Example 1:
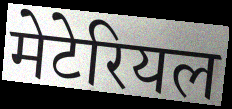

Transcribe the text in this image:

मेटेरियल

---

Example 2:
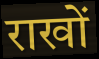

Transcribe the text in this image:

राखों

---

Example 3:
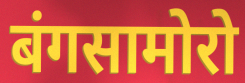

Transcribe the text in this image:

बंगसामोरो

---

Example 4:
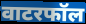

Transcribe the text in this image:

वाटरफॉल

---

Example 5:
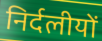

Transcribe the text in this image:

निर्दलीयों